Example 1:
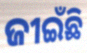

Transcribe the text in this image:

ଜୀଇଁଛି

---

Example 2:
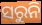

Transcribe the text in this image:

ସରୁନି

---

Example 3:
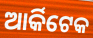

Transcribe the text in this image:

ଆର୍କିଟେକ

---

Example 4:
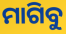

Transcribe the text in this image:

ମାଗିବୁ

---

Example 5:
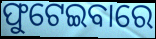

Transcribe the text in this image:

ଫୁଟେଇବାରେ